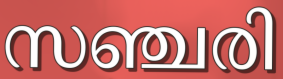
സഞ്ചരി